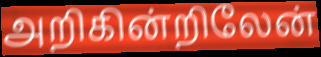
அறிகின்றிலேன்